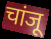
चांजू